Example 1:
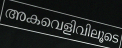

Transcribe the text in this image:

അകവെളിവിലൂടെ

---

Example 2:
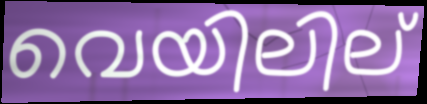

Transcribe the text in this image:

വെയിലില്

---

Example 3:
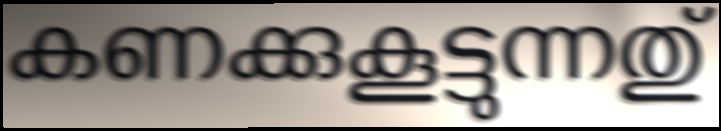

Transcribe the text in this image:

കണക്കുകൂട്ടുന്നതു്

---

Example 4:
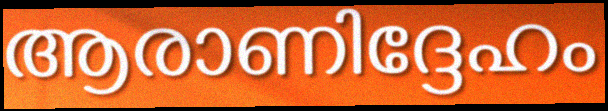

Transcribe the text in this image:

ആരാണിദ്ദേഹം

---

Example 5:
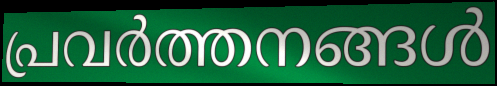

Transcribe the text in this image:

പ്രവർത്തനങ്ങൾ